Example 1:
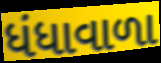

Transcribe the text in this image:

ધંધાવાળા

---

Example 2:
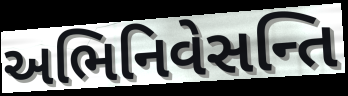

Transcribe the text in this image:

અભિનિવેસન્તિ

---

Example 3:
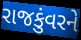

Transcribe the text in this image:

રાજકુંવરને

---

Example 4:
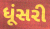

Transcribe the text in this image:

ધૂંસરી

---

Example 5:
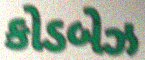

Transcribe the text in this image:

કોડબેઝ